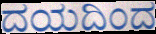
ದಯದಿಂದ